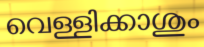
വെള്ളിക്കാശും